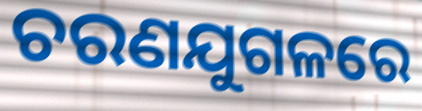
ଚରଣଯୁଗଳରେ